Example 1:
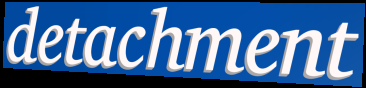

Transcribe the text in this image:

detachment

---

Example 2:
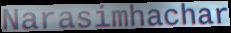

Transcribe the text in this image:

Narasimhachar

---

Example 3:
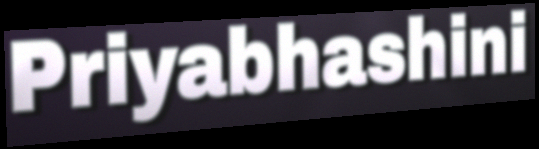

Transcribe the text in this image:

Priyabhashini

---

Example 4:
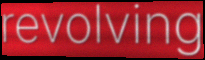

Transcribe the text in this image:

revolving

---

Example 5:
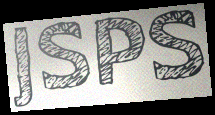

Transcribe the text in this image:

JSPS